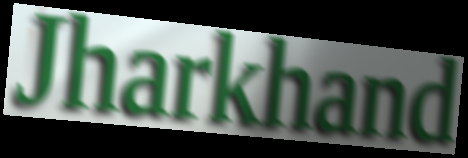
Jharkhand